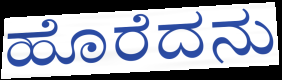
ಹೊರೆದನು